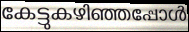
കേട്ടുകഴിഞ്ഞപ്പോൾ